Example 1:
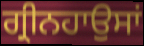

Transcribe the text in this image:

ਗ੍ਰੀਨਹਾਉਸਾਂ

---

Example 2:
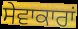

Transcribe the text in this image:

ਸੇਵਾਕਾਰਾਂ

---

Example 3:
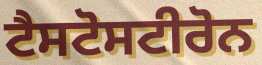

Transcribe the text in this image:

ਟੈਸਟੋਸਟੀਰੋਨ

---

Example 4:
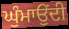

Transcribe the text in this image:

ਘੁੰਮਾਉਂਦੀ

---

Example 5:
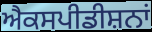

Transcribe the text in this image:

ਐਕਸਪੀਡੀਸ਼ਨਾਂ